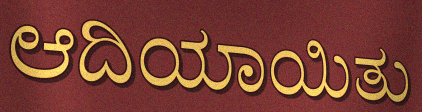
ಆದಿಯಾಯಿತು